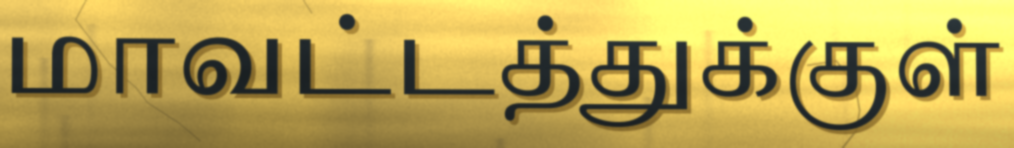
மாவட்டத்துக்குள்